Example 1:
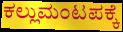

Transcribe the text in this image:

ಕಲ್ಲುಮಂಟಪಕ್ಕೆ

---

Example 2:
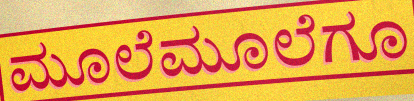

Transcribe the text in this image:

ಮೂಲೆಮೂಲೆಗೂ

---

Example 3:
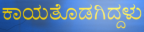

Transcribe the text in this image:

ಕಾಯತೊಡಗಿದ್ದಳು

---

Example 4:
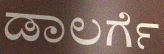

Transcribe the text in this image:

ಡಾಲರ್ಗೆ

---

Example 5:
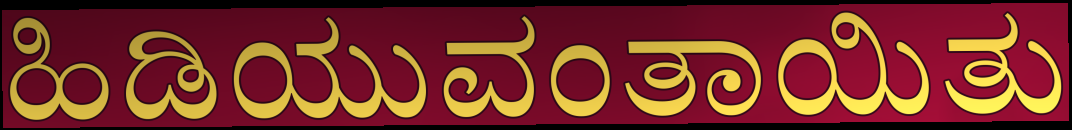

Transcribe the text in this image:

ಹಿಡಿಯುವಂತಾಯಿತು